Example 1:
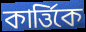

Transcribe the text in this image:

কার্ত্তিকে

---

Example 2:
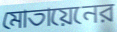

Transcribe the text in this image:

মোতায়েনের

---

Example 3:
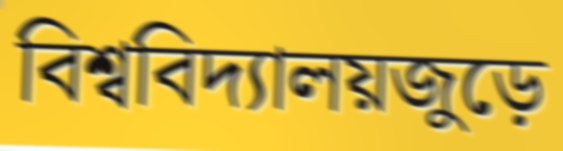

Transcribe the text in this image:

বিশ্ববিদ্যালয়জুড়ে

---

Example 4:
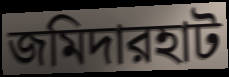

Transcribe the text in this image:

জমিদারহাট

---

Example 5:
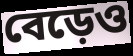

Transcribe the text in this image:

বেড়েও